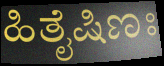
ಹಿತೈಷಿಣಃ